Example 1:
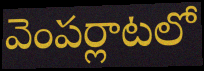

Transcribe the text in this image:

వెంపర్లాటలో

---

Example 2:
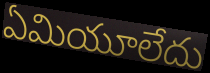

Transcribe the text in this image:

ఏమియూలేదు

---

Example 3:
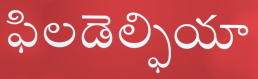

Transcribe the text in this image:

ఫిలడెల్ఫియా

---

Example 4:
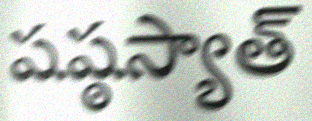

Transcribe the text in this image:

షష్ఠస్యాత్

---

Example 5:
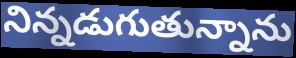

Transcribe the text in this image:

నిన్నడుగుతున్నాను